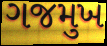
ગજમુખ